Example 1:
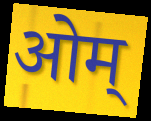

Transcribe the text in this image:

ओम्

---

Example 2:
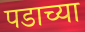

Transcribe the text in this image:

पडाच्या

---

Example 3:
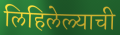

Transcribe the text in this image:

लिहिलेल्याची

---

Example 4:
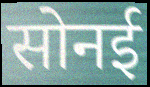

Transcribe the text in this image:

सोनई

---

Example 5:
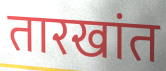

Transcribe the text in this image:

तारखांत